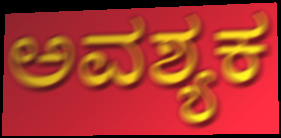
ಅವಶ್ಯಕ